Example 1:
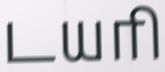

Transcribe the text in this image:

டயரி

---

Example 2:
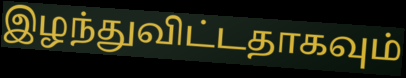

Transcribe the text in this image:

இழந்துவிட்டதாகவும்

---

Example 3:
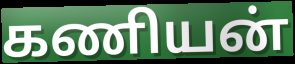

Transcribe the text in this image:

கணியன்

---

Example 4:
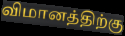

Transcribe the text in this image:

விமானத்திற்கு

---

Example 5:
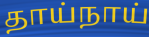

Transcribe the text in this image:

தாய்நாய்